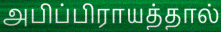
அபிப்பிராயத்தால்